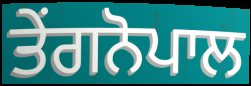
ਤੇਂਗਨੋਪਾਲ